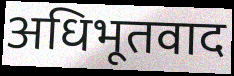
अधिभूतवाद